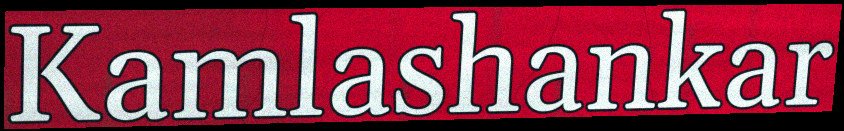
Kamlashankar